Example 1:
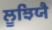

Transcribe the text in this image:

ਲੂਝਿਯੈ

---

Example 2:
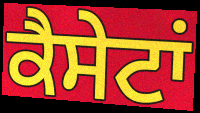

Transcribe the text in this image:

ਕੈਸੇਟਾਂ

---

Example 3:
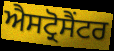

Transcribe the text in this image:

ਐਸਟ੍ਰੋਸੈਂਟਰ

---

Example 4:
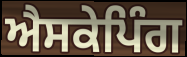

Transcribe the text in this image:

ਐਸਕੇਪਿੰਗ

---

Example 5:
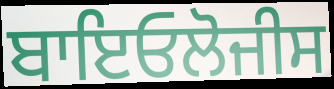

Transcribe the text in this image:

ਬਾਇਓਲੋਜੀਸ